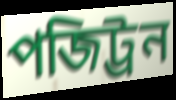
পজিট্রন